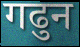
गढुन